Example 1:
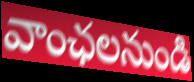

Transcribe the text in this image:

వాంఛలనుండి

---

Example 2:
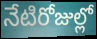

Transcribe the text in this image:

నేటిరోజుల్లో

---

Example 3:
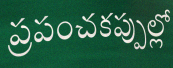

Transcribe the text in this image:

ప్రపంచకప్పుల్లో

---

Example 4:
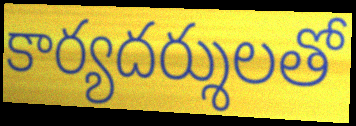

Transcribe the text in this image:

కార్యదర్శులతో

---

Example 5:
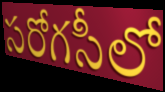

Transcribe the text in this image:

సరోగసీలో